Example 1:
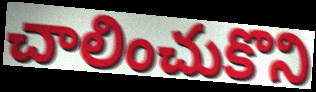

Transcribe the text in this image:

చాలించుకొని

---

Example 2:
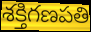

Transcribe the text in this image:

శక్తిగణపతి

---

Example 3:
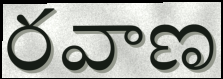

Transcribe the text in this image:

రవాణ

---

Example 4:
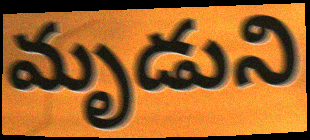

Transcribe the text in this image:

మృడుని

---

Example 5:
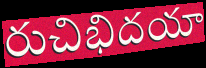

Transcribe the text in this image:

రుచిభిదయా